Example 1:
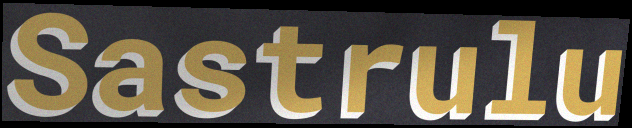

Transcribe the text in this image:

Sastrulu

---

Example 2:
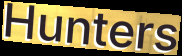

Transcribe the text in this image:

Hunters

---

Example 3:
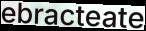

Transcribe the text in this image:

ebracteate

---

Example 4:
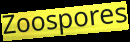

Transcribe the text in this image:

Zoospores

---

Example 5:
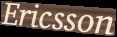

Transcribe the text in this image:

Ericsson